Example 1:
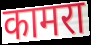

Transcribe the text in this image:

कामरा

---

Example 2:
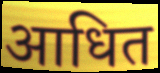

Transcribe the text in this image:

आधित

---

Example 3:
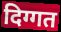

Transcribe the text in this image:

दिग्गत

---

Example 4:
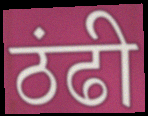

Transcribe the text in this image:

ठंढी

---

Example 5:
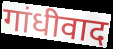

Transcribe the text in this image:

गांधीवाद